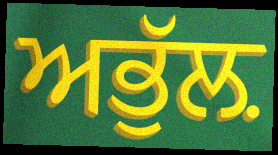
ਅਭੁੱਲ਼